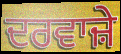
ਦਰਵਾਜ਼ੇ